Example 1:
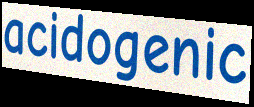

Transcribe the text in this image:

acidogenic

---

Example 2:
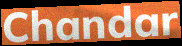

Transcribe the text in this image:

Chandar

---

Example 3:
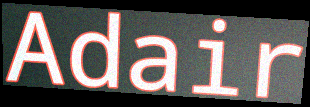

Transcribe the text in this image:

Adair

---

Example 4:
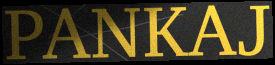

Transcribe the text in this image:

PANKAJ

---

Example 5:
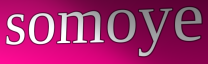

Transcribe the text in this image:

somoye